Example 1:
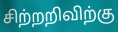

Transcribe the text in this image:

சிற்றறிவிற்கு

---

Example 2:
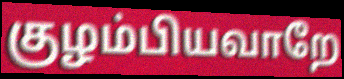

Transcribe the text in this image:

குழம்பியவாறே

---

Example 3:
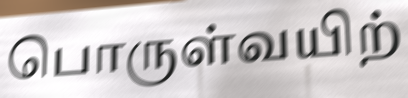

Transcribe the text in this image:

பொருள்வயிற்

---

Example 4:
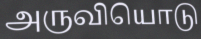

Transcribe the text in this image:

அருவியொடு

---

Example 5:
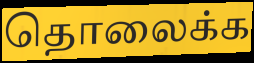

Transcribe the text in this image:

தொலைக்க